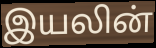
இயலின்